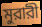
মুরারী